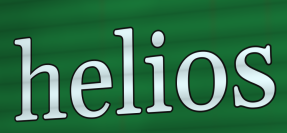
helios